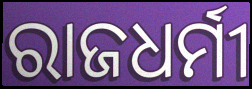
ରାଜଧର୍ମୀ